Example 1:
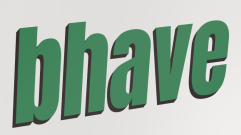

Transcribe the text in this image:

bhave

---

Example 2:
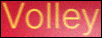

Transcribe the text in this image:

Volley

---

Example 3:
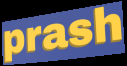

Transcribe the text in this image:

prash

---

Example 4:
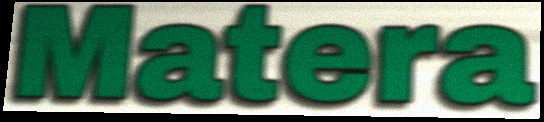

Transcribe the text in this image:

Matera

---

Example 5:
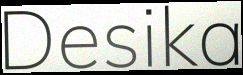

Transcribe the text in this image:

Desika